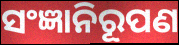
ସଂଜ୍ଞାନିରୂପଣ